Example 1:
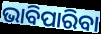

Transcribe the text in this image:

ଭାବିପାରିବା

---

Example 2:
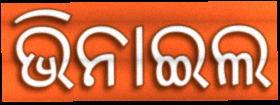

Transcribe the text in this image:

ଭିନାଇଲ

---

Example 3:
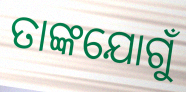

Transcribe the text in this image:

ତାଙ୍କଯୋଗୁଁ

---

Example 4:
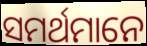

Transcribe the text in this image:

ସମର୍ଥମାନେ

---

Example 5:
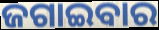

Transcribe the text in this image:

ଜଗାଇବାର